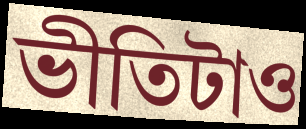
ভীতিটাও